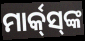
ମାର୍କ୍‌ସ୍‌ଙ୍କ